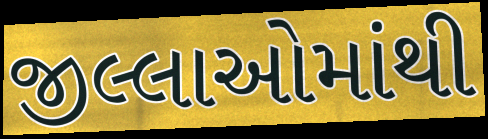
જીલ્લાઓમાંથી